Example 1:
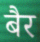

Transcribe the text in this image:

बैर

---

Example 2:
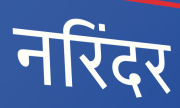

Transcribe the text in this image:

नरिंदर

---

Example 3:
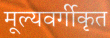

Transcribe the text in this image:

मूल्यवर्गीकृत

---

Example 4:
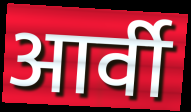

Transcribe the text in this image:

आर्वी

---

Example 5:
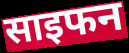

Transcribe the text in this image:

साइफन